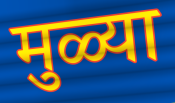
मुळ्या